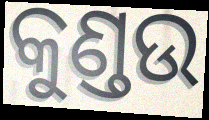
କୁଣ୍ଡଉ